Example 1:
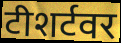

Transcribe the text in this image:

टीशर्टवर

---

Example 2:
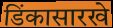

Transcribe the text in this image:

डिंकासारखे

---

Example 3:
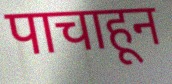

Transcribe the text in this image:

पाचाहून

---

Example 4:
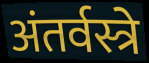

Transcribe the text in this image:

अंतर्वस्त्रे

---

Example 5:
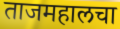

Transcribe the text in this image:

ताजमहालचा